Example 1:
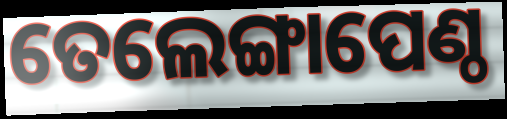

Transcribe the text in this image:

ତେଲେଙ୍ଗାପେଣ୍ଠ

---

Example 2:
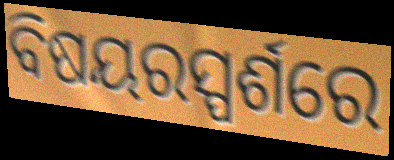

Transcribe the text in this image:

ବିଷୟରସ୍ପର୍ଶରେ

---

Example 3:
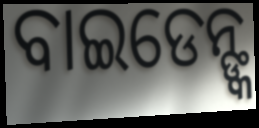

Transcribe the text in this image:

ବାଇଡେନ୍ଙ୍କ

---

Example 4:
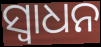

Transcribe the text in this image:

ସ୍ଵାଧନ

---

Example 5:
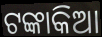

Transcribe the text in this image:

ଟଙ୍କାକିଆ